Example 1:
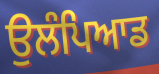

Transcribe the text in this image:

ਉਲੰਪਿਆਡ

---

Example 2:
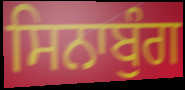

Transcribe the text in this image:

ਸਿਨਾਬੁੰਗ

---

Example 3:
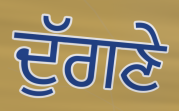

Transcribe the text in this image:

ਦੁੱਗਣੇ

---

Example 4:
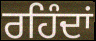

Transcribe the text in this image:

ਰਹਿੰਦਾਂ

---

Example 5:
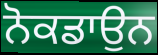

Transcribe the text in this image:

ਨੋਕਡਾਉਨ